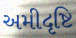
અમીદૃષ્ટિ